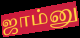
ஜாம்னு